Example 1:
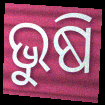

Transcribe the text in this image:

ଭୁଷି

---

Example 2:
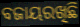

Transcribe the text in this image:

ବଜାୟରଖିଛି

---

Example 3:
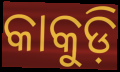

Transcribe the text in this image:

କାକୁଡ଼ି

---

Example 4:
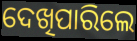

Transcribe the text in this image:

ଦେଖିପାରିଲେ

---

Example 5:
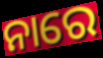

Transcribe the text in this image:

ନାରେ